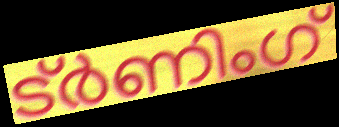
ട്ർണിംഗ്